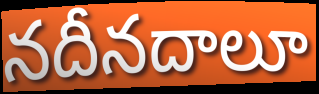
నదీనదాలూ